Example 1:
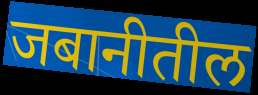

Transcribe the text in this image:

जबानीतील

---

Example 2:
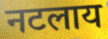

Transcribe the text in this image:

नटलाय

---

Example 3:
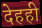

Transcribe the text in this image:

देहही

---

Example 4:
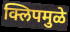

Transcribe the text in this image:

क्लिपमुळे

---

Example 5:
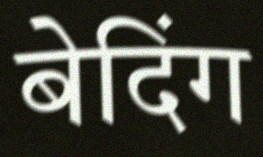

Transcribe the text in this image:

बेदिंग